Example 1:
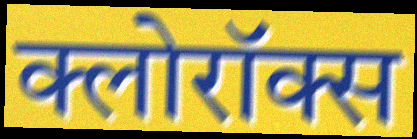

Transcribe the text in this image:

क्लोरॉक्स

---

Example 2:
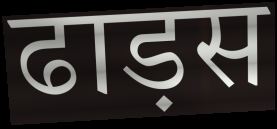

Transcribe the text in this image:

ढाड़स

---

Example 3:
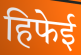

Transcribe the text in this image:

हिफेई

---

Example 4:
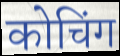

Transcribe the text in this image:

कोचिंग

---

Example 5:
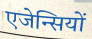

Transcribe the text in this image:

एजेन्सियों